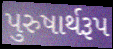
પુરુષાર્થરૂપ